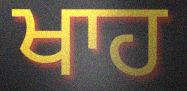
ਖਾਹ